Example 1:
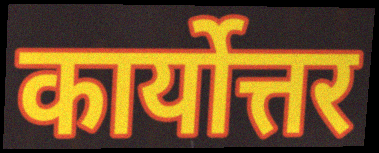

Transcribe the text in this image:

कार्योत्तर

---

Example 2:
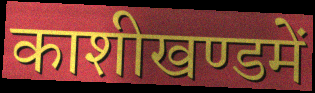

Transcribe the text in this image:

काशीखण्डमें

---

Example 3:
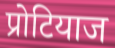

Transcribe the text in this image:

प्रोटियाज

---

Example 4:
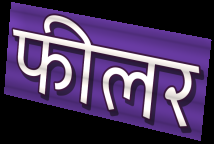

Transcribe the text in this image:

फीलर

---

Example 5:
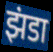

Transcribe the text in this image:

झंडा